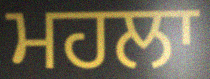
ਮਹਲਾ